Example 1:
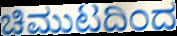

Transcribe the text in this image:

ಚಿಮುಟದಿಂದ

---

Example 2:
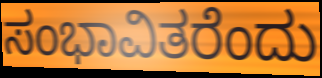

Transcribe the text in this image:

ಸಂಭಾವಿತರೆಂದು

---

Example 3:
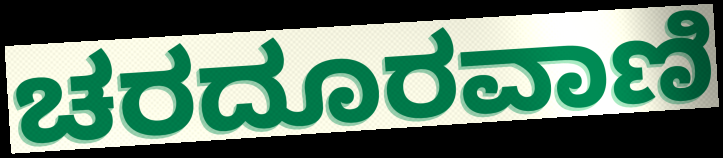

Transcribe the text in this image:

ಚರದೂರವಾಣಿ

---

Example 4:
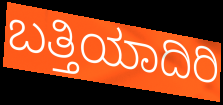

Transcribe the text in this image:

ಬತ್ತಿಯಾದಿರಿ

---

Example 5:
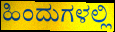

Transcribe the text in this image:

ಹಿಂದುಗಳಲ್ಲಿ